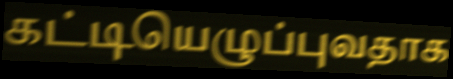
கட்டியெழுப்புவதாக